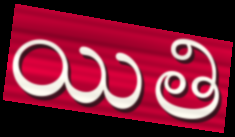
యితి